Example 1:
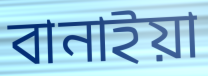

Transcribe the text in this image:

বানাইয়া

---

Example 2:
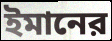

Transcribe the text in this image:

ইমানের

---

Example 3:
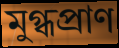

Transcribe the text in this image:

মুগ্ধপ্রাণ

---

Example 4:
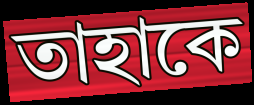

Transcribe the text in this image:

তাহাকে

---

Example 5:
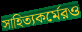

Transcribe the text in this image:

সাহিত্যকর্মেরও